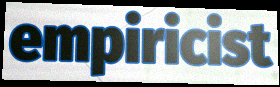
empiricist